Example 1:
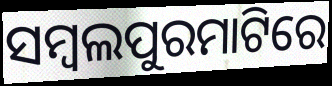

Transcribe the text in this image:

ସମ୍ବଲପୁରମାଟିରେ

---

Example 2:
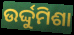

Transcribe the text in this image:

ଉର୍ଦ୍ଦୁମିଶା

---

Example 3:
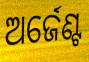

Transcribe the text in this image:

ଅର୍ଜେଣ୍ଟ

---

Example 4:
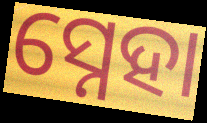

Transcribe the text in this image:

ସ୍ନେହା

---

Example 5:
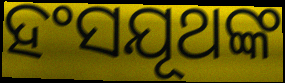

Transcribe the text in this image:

ହଂସଯୂଥଙ୍କ